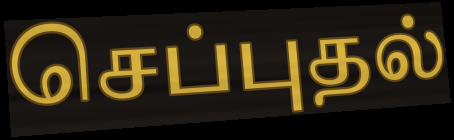
செப்புதல்